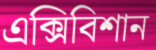
এক্সিবিশান